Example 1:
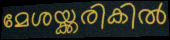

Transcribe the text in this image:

മേശയ്ക്കരികിൽ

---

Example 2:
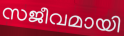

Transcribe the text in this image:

സജീവമായി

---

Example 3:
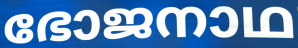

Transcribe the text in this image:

ഭോജനാഥ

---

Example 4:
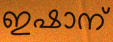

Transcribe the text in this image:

ഇഷാന്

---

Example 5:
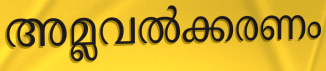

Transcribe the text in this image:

അമ്ലവൽക്കരണം